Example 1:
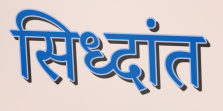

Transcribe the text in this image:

सिध्दांत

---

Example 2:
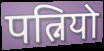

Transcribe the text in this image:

पत्नियो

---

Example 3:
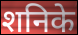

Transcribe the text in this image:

शनिके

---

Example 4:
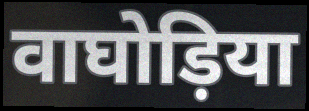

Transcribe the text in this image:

वाघोड़िया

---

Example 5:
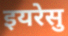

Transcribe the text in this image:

इयरेसु